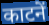
काटनें